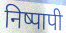
निष्पापी